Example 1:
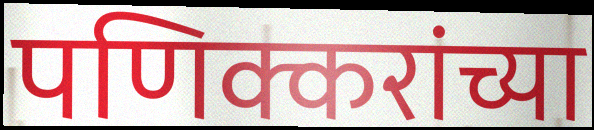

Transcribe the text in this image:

पणिक्करांच्या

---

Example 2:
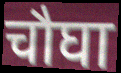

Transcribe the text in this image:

चौघा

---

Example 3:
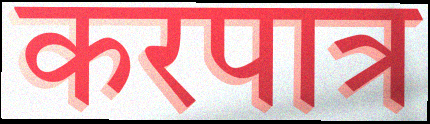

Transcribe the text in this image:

करपात्र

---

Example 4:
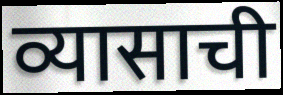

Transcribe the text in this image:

व्यासाची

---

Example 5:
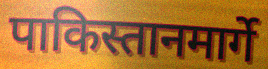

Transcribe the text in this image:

पाकिस्तानमार्गे